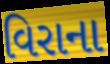
વિરાના